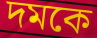
দমকে